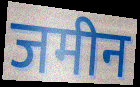
जमीन